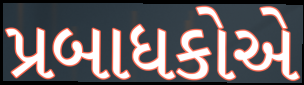
પ્રબાધકોએ